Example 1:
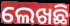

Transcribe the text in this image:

ଲେଖଛି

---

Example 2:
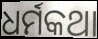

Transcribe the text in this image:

ଧର୍ମକଥା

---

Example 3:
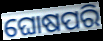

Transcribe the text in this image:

ଘୋଷପରି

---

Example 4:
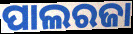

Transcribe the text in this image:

ପାଲରଜା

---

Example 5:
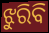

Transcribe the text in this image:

ଝୁରିବି